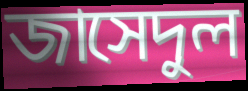
জাসেদুল